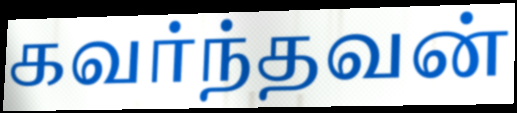
கவர்ந்தவன்